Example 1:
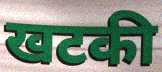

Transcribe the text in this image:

खटकी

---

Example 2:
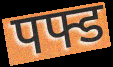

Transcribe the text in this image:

पफ्ड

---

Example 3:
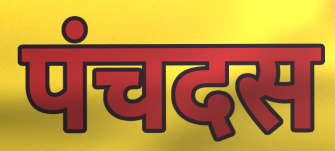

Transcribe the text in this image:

पंचदस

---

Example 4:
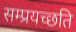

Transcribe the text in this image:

सम्प्रयच्छति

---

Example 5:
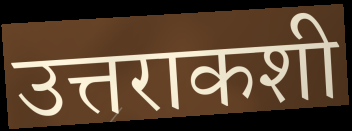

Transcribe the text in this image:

उत्तराकशी